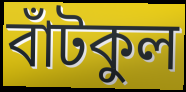
বাঁটকুল